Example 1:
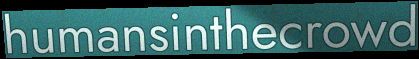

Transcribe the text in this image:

humansinthecrowd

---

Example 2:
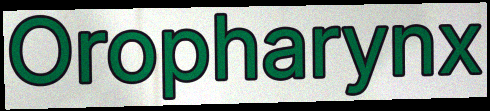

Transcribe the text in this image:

Oropharynx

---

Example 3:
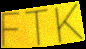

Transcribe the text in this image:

FTK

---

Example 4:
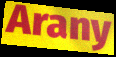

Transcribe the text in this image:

Arany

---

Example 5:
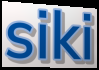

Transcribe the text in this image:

siki